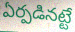
ఏర్పడినట్టే